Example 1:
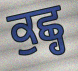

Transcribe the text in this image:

ਕੁਛ੍ਹ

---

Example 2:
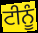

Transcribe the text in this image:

ਟੀਨੂੰ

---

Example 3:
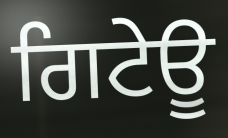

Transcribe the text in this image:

ਗਿਟੇਊ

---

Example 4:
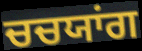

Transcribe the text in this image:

ਚਚਯਾਂਗ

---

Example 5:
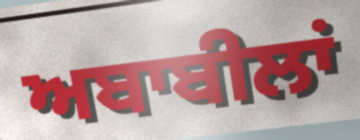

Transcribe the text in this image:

ਅਬਾਬੀਲਾਂ